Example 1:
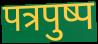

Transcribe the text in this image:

पत्रपुष्प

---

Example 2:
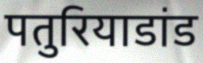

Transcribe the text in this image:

पतुरियाडांड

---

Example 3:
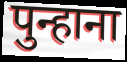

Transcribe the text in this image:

पुन्हाना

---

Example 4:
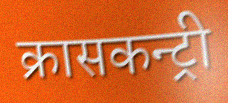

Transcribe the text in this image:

क्रासकन्ट्री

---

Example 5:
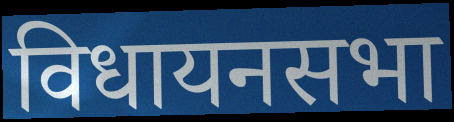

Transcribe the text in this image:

विधायनसभा